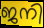
ജനി